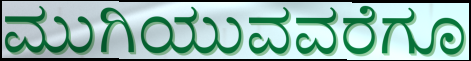
ಮುಗಿಯುವವರೆಗೂ